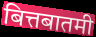
बित्तबातमी